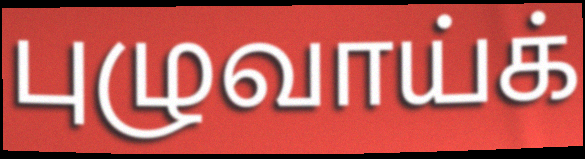
புழுவாய்க்